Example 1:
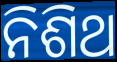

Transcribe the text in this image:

ନିଶିଥ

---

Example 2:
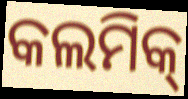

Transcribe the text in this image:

କଲମିକ୍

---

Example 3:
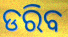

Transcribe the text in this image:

ଡରିବ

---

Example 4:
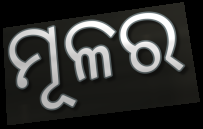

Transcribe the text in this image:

ମୂଳର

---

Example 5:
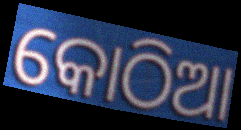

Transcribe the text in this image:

କୋଠିଆ